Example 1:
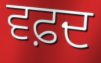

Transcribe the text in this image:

ਵਫ਼ਦ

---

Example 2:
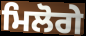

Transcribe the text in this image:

ਮਿਲੋਗੇ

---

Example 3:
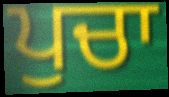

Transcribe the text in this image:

ਪੁਚਾ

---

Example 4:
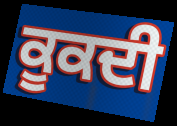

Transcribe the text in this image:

ਕੂਕਦੀ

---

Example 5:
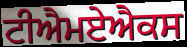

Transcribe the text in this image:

ਟੀਐਮਏਐਕਸ